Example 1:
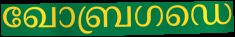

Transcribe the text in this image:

ഖോബ്രഗഡെ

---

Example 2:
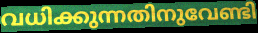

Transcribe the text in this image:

വധിക്കുന്നതിനുവേണ്ടി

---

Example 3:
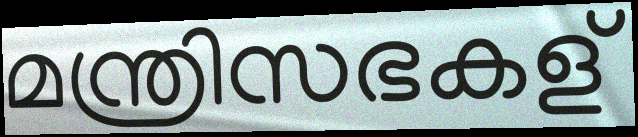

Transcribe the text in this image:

മന്ത്രിസഭകള്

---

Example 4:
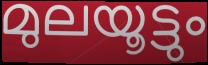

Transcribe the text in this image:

മുലയൂട്ടും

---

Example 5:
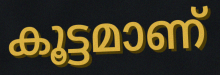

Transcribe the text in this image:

കൂട്ടമാണ്